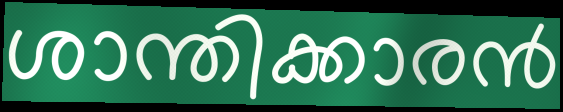
ശാന്തിക്കാരൻ